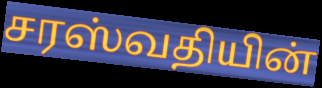
சரஸ்வதியின்